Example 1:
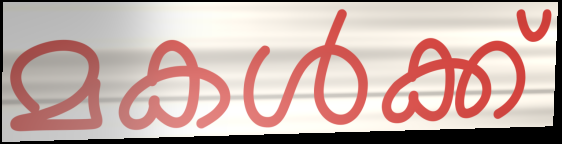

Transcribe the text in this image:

മകൾക്ക്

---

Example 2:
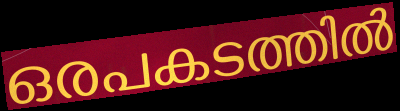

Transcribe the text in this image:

ഒരപകടത്തിൽ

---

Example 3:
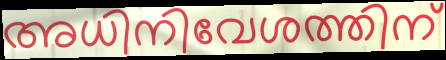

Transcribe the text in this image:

അധിനിവേശത്തിന്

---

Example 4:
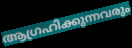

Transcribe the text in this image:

ആഗ്രഹിക്കുന്നവരും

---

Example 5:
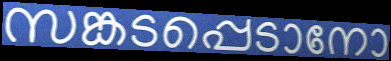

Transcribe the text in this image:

സങ്കടപ്പെടാനോ